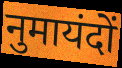
नुमायंदों